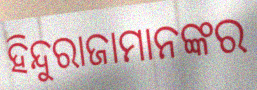
ହିନ୍ଦୁରାଜାମାନଙ୍କର